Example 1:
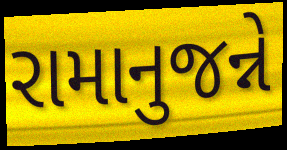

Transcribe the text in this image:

રામાનુજન્ને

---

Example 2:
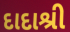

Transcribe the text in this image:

દાદાશ્રી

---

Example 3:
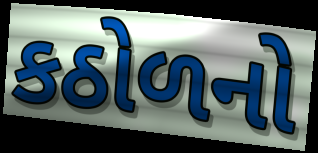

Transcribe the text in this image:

કઠોળનો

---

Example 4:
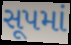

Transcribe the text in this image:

સૂપમાં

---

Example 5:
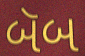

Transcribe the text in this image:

બૅબ